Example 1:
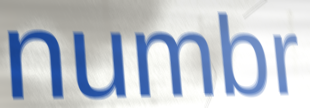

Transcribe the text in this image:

numbr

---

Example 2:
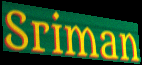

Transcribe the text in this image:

Sriman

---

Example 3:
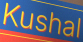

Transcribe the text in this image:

Kushal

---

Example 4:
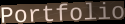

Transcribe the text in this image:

Portfolio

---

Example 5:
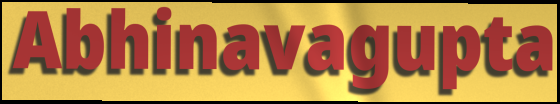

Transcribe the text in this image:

Abhinavagupta